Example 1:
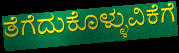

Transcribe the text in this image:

ತೆಗೆದುಕೊಳ್ಳುವಿಕೆಗೆ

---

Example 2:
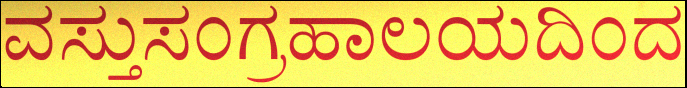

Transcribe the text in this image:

ವಸ್ತುಸಂಗ್ರಹಾಲಯದಿಂದ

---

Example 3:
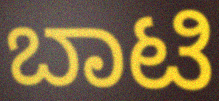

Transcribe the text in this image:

ಬಾಟಿ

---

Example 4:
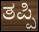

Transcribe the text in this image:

ತಪ್ಪಿ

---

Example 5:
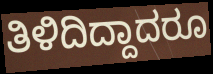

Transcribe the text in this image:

ತಿಳಿದಿದ್ದಾದರೂ